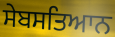
ਸੇਬਸਤਿਆਨ